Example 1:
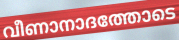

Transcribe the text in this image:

വീണാനാദത്തോടെ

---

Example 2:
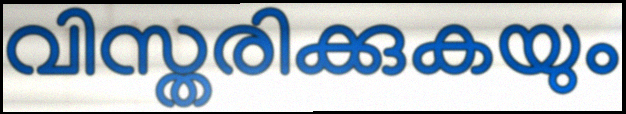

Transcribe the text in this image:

വിസ്തരിക്കുകയും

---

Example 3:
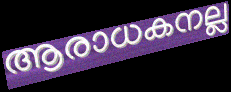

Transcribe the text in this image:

ആരാധകനല്ല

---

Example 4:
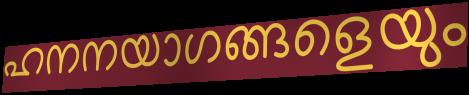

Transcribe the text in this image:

ഹനനയാഗങ്ങളെയും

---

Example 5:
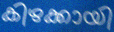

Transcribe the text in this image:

കിഴക്കായി